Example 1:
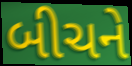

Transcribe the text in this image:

બીચને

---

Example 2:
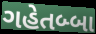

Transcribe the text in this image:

ગહેતબ્બા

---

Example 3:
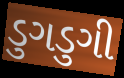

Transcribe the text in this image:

ડુગડુગી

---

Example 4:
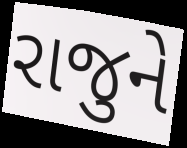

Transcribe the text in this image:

રાજુને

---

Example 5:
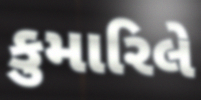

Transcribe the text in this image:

કુમારિલે